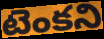
టెంకని